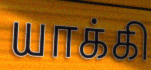
யாக்கி